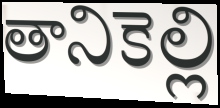
తానికెల్లి